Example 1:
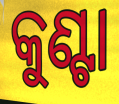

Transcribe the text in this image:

କୁଣ୍ଟା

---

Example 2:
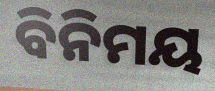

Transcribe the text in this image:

ବିନିମୟ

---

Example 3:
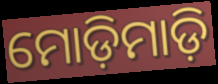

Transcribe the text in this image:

ମୋଡ଼ିମାଡ଼ି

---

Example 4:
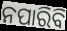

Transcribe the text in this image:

ନପାରିବି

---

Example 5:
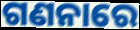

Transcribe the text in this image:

ଗଣନାରେ